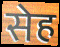
सेह